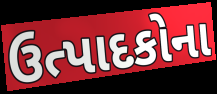
ઉત્પાદકોના